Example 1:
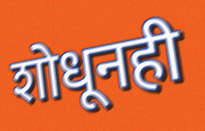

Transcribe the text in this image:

शोधूनही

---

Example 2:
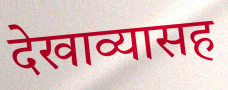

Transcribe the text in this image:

देखाव्यासह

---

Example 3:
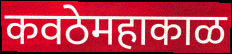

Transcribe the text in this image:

कवठेमहाकाळ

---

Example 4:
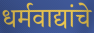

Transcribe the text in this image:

धर्मवाद्यांचे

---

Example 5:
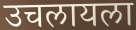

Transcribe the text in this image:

उचलायला